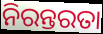
ନିରନ୍ତରତା